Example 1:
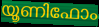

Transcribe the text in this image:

യൂണിഫോം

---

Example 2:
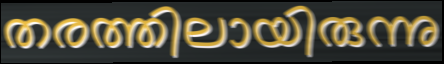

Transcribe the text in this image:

തരത്തിലായിരുന്നു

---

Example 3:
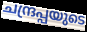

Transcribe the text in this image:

ചന്ദ്രപ്പയുടെ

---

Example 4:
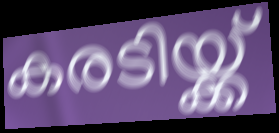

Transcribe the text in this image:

കരടിയ്ക്ക്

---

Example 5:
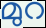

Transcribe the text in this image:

മുറ